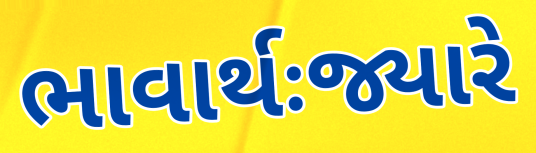
ભાવાર્થઃજ્યારે